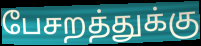
பேசறத்துக்கு